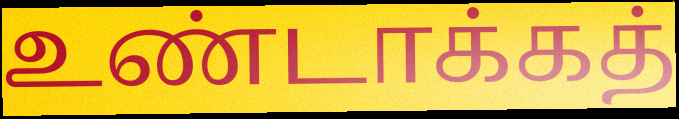
உண்டாக்கத்